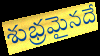
శుభ్రమైనదే